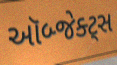
ઑબ્જેક્ટ્સ